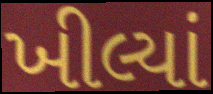
ખીલ્યાં